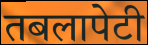
तबलापेटी